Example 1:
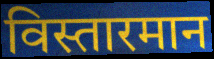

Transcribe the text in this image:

विस्तारमान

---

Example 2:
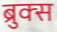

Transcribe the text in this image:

ब्रुक्‍स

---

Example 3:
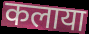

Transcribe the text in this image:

कलाया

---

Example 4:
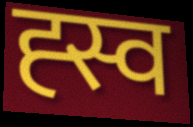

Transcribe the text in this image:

ह्स्व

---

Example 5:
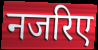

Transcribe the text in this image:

नजरिए